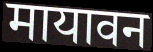
मायावन